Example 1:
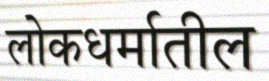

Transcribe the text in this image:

लोकधर्मातील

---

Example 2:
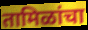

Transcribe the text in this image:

तामिळांचा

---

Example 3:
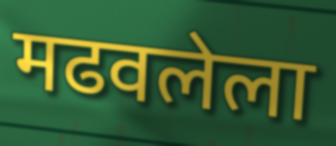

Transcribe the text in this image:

मढवलेला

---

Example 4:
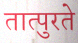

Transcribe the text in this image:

तात्पुरते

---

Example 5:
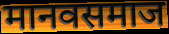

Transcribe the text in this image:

मानवसमाज